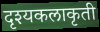
दृश्यकलाकृती